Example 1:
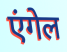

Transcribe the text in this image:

एंगेल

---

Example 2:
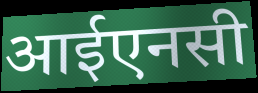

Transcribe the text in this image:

आईएनसी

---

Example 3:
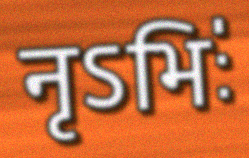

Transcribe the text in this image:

नृऽभिः॑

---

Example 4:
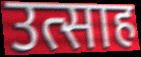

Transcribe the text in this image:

उत्‍साह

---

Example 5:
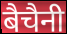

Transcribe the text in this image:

बैचैनी